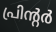
പ്രിന്റർ